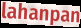
lahanpan